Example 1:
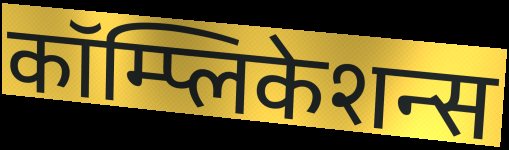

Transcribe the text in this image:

कॉम्प्लिकेशन्स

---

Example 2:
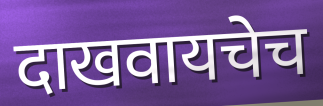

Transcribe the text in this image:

दाखवायचेच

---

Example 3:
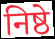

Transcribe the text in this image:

निष्ठे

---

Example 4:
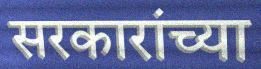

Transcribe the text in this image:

सरकारांच्या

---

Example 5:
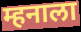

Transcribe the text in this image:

म्हनाला